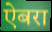
ऐबरा